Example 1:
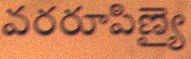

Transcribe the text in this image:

వరరూపిణ్యై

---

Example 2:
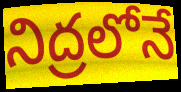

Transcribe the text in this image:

నిద్రలోనే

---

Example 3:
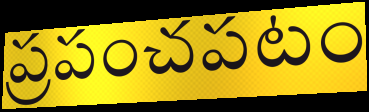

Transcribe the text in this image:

ప్రపంచపటం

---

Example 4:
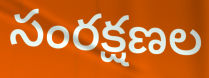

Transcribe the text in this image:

సంరక్షణల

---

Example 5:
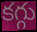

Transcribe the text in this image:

కగ్గు